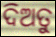
ଦିଅତୁ